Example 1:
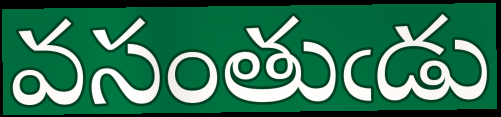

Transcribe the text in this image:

వసంతుఁడు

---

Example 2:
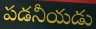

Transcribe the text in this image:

పడనీయడు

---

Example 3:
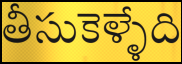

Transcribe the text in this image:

తీసుకెళ్ళేది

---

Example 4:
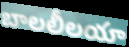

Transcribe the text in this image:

బాలలీలయా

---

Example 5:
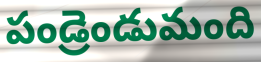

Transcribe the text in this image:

పండ్రెండుమంది